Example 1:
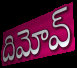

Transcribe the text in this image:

దిమోవ్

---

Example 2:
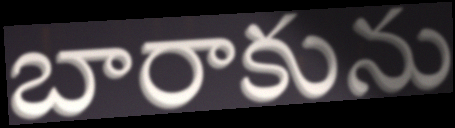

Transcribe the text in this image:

బారాకును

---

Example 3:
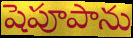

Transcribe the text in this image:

షెపూపాను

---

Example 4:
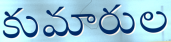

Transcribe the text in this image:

కుమారుల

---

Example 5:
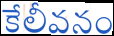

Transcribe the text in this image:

కేలీవనం